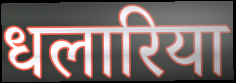
धलारिया